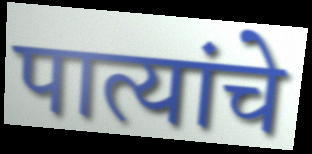
पात्यांचे